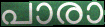
പാരാ